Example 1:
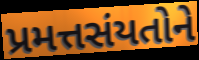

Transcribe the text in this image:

પ્રમત્તસંયતોને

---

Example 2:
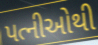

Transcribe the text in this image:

પત્નીઓથી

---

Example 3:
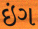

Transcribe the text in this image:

ઇંગ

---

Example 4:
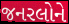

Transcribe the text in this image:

જનરલોને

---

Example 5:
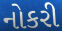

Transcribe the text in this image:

નોકરી